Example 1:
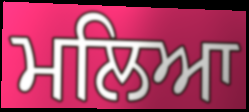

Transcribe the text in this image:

ਮਲਿਆ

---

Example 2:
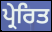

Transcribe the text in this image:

ਪ੍ਰੇਰਿਤ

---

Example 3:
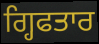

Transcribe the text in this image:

ਗ੍ਹਿਫਤਾਰ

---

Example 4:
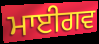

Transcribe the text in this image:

ਮਾਈਗਵ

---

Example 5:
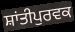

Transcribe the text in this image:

ਸ਼ਾਂਤੀਪੁਰਵਕ